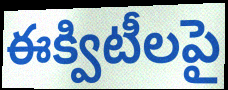
ఈక్విటీలపై